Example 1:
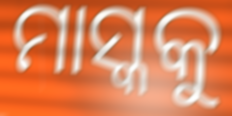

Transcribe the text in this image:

ମାସ୍କକୁ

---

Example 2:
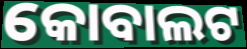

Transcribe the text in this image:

କୋବାଲଟ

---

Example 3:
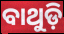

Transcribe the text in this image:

ବାଥୁଡ଼ି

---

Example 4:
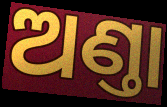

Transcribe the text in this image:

ଅଣ୍ତା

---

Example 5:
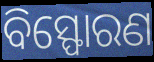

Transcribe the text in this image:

ବିସ୍ଫୋରଣ